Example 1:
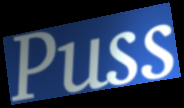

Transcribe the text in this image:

Puss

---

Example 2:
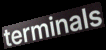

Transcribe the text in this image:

terminals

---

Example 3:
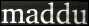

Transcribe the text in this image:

maddu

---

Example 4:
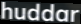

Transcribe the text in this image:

huddar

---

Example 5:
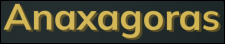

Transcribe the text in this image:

Anaxagoras